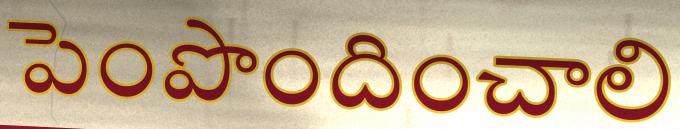
పెంపొందించాలి